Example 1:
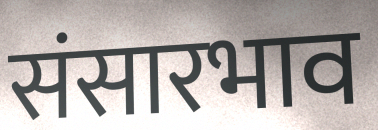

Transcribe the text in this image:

संसारभाव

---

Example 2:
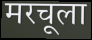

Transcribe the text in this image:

मरचूला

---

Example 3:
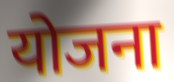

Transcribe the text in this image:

योजना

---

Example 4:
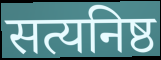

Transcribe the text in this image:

सत्यनिष्ठ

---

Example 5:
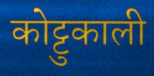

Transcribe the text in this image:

कोट्टुकाली